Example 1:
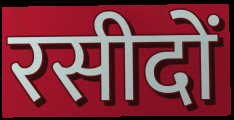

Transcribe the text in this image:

रसीदों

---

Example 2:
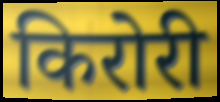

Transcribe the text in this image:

किरोरी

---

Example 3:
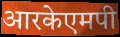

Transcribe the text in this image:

आरकेएमपी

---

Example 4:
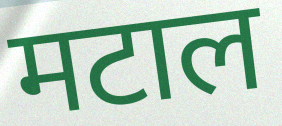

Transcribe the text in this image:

मटाल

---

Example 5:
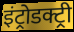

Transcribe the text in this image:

इंट्रोडक्ट्री